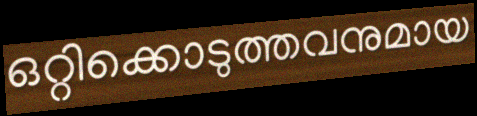
ഒറ്റിക്കൊടുത്തവനുമായ